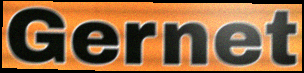
Gernet